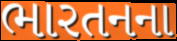
ભારતનના